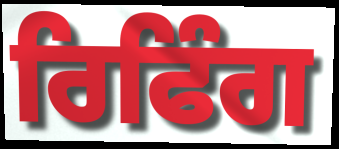
ਰਿਫਿੰਗ